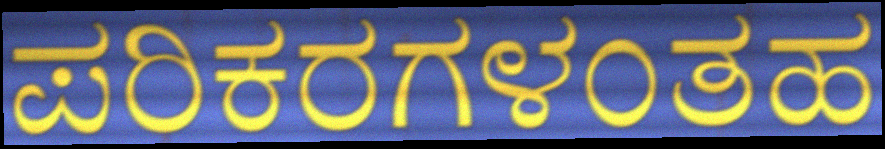
ಪರಿಕರಗಳಂತಹ